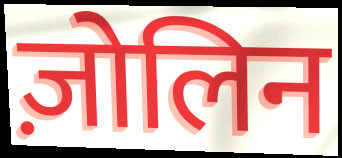
ज़ोलिन